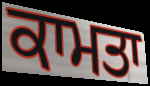
ਕਾਮਤਾ